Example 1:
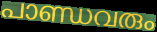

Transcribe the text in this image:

പാണ്ഡവരും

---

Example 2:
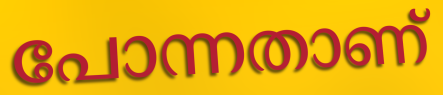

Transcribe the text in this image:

പോന്നതാണ്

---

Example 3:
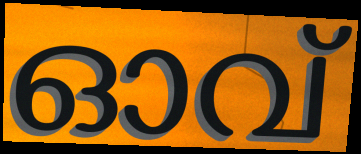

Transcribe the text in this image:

ഓവ്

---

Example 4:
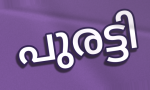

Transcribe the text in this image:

പുരട്ടി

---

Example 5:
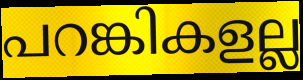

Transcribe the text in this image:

പറങ്കികളല്ല